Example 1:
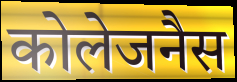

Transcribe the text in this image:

कोलेजनैस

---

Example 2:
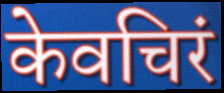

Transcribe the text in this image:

केवचिरं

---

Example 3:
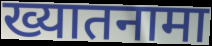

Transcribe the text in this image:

ख्यातनामा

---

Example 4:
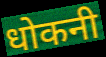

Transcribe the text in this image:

धोकनी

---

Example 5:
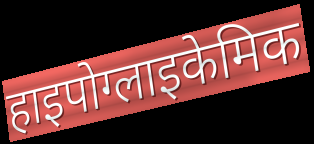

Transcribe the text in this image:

हाइपोग्लाइकेमिक